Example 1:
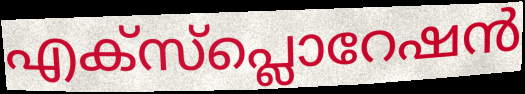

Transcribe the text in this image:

എക്സ്പ്ലൊറേഷൻ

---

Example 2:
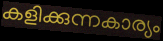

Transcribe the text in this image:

കളിക്കുന്നകാര്യം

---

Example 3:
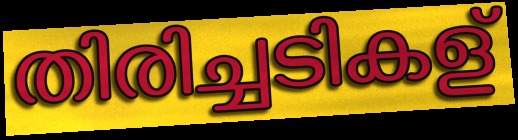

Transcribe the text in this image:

തിരിച്ചടികള്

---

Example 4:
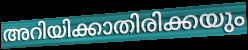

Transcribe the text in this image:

അറിയിക്കാതിരിക്കയും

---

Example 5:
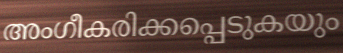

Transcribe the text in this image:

അംഗീകരിക്കപ്പെടുകയും